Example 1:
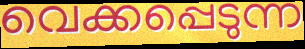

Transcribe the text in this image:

വെക്കപ്പെടുന്ന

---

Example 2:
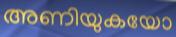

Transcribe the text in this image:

അണിയുകയോ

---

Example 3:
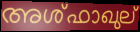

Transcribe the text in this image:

അശ്ഫാഖുല്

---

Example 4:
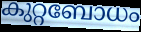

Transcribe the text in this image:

കുറ്റബോധം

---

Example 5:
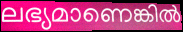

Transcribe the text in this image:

ലഭ്യമാണെങ്കിൽ